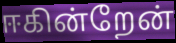
ஈகின்றேன்